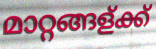
മാറ്റങ്ങള്ക്ക്